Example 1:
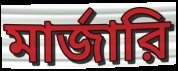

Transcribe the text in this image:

মার্জারি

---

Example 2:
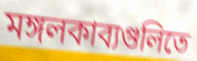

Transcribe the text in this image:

মঙ্গলকাব্যগুলিতে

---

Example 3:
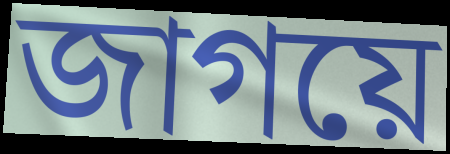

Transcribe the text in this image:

জাগয়ে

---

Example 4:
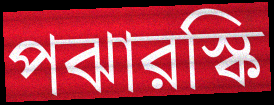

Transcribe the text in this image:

পঝারস্কি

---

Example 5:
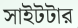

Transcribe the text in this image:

সাইটটার